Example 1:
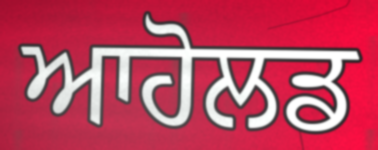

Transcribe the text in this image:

ਆਹੋਲਡ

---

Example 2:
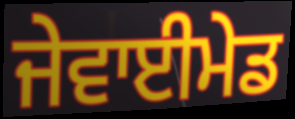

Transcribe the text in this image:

ਜੇਵਾਈਮੇਡ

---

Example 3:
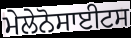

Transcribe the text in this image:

ਮੇਲੇਨੋਸਾਈਟਸ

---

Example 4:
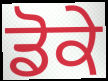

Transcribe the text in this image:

ਡੋਕੇ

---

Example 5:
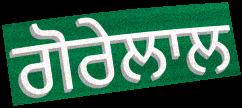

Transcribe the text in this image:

ਗੋਰੇਲਾਲ